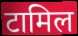
टामिल